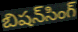
బిషన్‌సింగ్